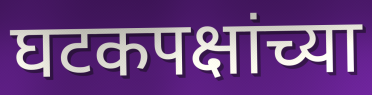
घटकपक्षांच्या